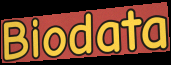
Biodata